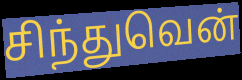
சிந்துவென்